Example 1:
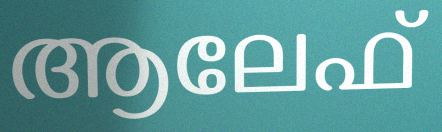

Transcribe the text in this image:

ആലേഫ്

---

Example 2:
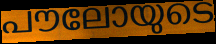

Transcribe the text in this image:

പൗലോയുടെ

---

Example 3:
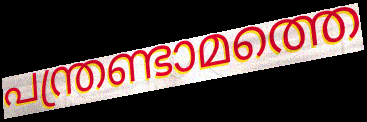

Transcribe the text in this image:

പന്ത്രണ്ടാമത്തെ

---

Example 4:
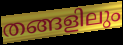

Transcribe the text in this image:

തങ്ങളിലും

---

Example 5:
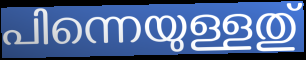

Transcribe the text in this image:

പിന്നെയുള്ളതു്